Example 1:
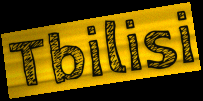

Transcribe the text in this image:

Tbilisi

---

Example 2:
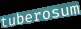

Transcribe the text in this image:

tuberosum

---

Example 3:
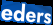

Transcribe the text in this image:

eders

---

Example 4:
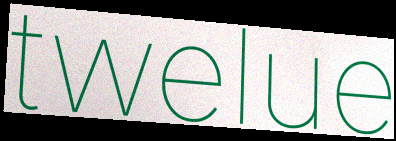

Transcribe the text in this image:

twelue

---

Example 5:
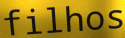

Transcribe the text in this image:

filhos